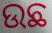
ଉଛ